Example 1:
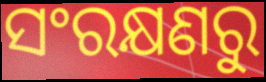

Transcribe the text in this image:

ସଂରକ୍ଷଣରୁ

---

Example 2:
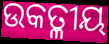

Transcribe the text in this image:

ଉକତ୍ଳୀୟ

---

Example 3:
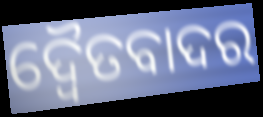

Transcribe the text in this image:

ଦ୍ୱୈତବାଦର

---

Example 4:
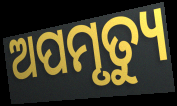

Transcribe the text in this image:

ଅପମୃତ୍ୟୁ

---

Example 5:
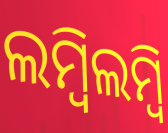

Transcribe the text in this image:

ଲମ୍ବିଲମ୍ବି